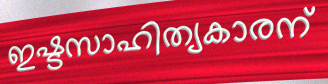
ഇഷ്ടസാഹിത്യകാരന്